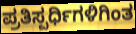
ಪ್ರತಿಸ್ಪರ್ಧಿಗಳಿಗಿಂತ